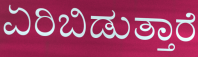
ಏರಿಬಿಡುತ್ತಾರೆ